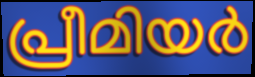
പ്രീമിയർ